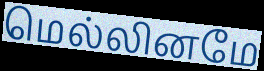
மெல்லினமே